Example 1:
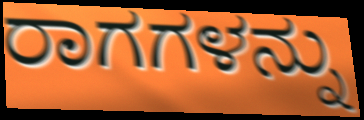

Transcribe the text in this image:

ರಾಗಗಳನ್ನು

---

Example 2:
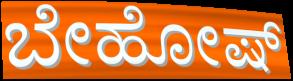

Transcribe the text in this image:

ಬೇಹೋಷ್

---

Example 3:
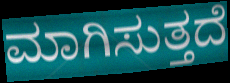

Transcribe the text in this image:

ಮಾಗಿಸುತ್ತದೆ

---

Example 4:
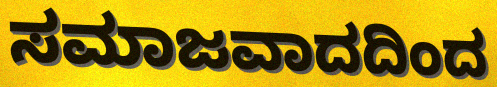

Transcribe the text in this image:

ಸಮಾಜವಾದದಿಂದ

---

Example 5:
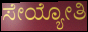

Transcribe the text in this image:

ಸೇಯ್ಯೋತಿ